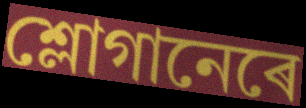
শ্লোগানেৰে